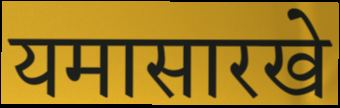
यमासारखे